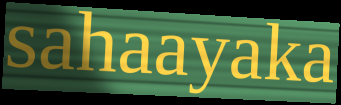
sahaayaka